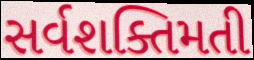
સર્વશક્તિમતી